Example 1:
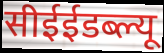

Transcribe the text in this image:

सीईईडब्ल्यू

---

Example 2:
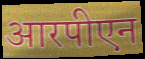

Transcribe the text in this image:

आरपीएन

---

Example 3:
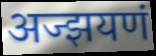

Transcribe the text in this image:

अज्झयणं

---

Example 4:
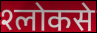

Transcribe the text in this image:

श्लोकसे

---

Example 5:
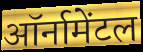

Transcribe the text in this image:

ऑर्नामेंटल